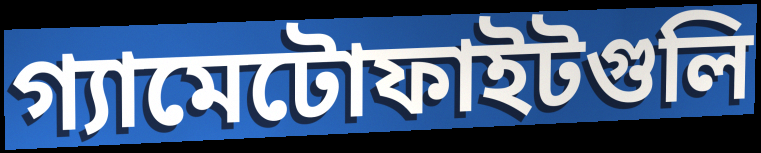
গ্যামেটোফাইটগুলি